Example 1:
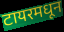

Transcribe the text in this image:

टायरमधून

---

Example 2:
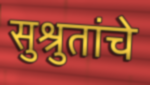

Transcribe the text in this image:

सुश्रुतांचे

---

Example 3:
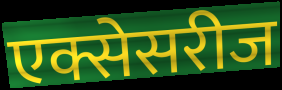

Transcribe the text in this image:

एक्सेसरीज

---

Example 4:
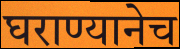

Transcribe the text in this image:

घराण्यानेच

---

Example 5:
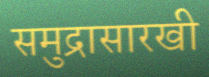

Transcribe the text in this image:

समुद्रासारखी